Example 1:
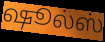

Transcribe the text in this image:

ஷூல்ஸ்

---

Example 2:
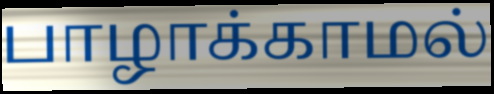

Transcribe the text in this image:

பாழாக்காமல்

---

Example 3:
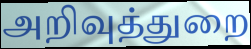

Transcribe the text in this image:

அறிவுத்துறை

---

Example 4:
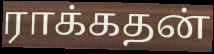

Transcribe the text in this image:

ராக்கதன்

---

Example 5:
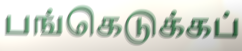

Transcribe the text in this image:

பங்கெடுக்கப்